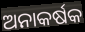
ଅନାକର୍ଷକ